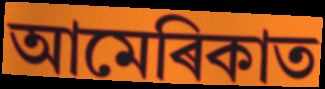
আমেৰিকাত